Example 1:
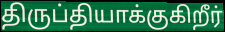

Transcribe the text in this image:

திருப்தியாக்குகிறீர்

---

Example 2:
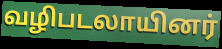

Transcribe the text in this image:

வழிபடலாயினர்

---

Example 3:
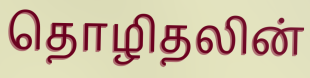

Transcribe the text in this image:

தொழிதலின்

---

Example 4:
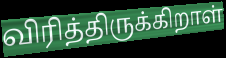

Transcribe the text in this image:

விரித்திருக்கிறாள்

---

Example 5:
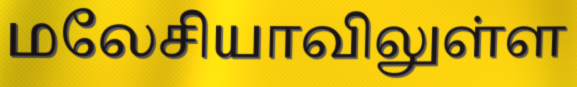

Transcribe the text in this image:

மலேசியாவிலுள்ள